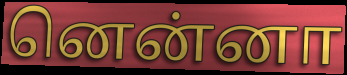
னென்னா